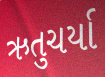
ઋતુચર્યા